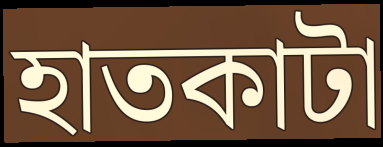
হাতকাটা